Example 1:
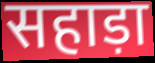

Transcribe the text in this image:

सहाड़ा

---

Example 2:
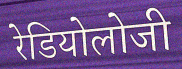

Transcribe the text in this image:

रेडियोलोजी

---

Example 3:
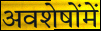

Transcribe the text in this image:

अवशेषोंमें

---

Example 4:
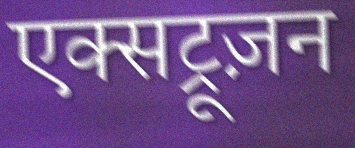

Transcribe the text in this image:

एक्सट्रूज़न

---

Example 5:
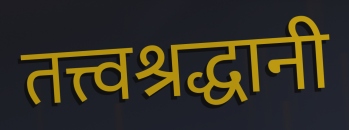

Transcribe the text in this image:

तत्त्वश्रद्धानी